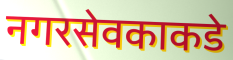
नगरसेवकाकडे